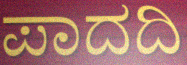
ಪಾದದಿ